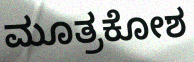
ಮೂತ್ರಕೋಶ